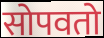
सोपवतो